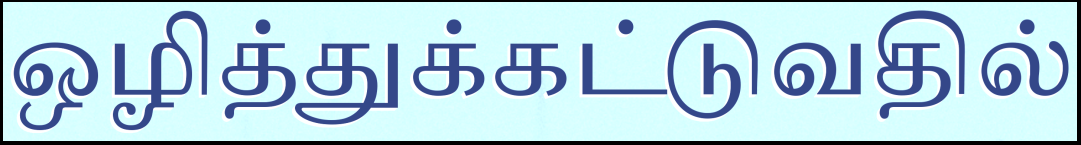
ஒழித்துக்கட்டுவதில்